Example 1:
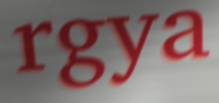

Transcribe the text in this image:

rgya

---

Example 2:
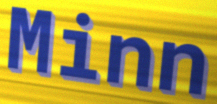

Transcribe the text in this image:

Minn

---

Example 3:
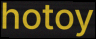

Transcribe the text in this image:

hotoy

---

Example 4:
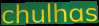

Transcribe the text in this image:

chulhas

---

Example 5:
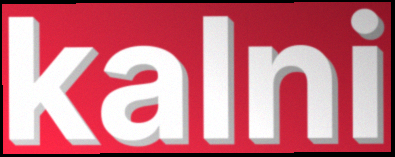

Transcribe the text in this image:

kalni